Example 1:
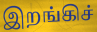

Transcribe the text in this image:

இறங்கிச்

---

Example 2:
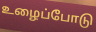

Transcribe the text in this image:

உழைப்போடு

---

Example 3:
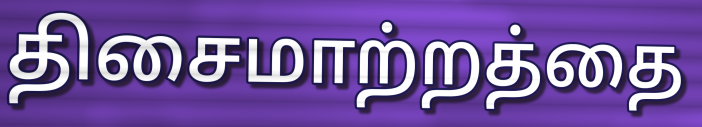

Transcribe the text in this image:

திசைமாற்றத்தை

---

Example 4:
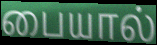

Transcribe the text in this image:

பையால்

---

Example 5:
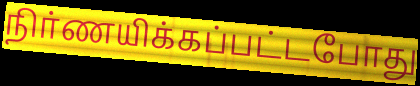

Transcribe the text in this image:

நிர்ணயிக்கப்பட்டபோது